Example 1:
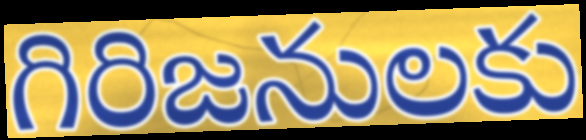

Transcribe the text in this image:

గిరిజనులకు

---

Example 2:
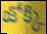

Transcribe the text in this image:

జోక్కి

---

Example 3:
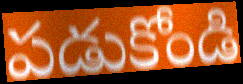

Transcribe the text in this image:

పడుకోండి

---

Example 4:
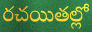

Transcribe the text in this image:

రచయితల్లో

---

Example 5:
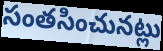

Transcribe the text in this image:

సంతసించునట్లు